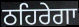
ਠਹਿਰੇਗਾ